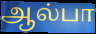
ஆல்பா